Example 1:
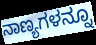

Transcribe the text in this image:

ನಾಣ್ಯಗಳನ್ನೂ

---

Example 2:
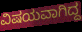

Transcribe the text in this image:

ವಿಷಯವಾಗಿದ್ದ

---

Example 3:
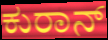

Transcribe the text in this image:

ಕುರಾನ್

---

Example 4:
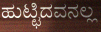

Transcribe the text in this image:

ಹುಟ್ಟಿದವನಲ್ಲ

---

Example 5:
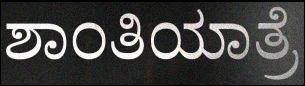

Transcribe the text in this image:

ಶಾಂತಿಯಾತ್ರೆ